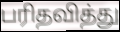
பரிதவித்து